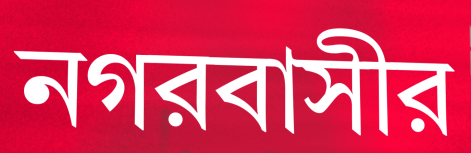
নগরবাসীর